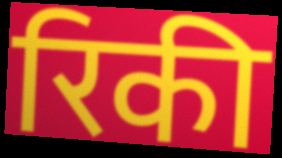
रिकी